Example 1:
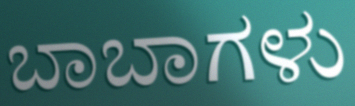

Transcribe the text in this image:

ಬಾಬಾಗಳು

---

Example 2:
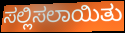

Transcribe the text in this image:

ಸಲ್ಲಿಸಲಾಯಿತು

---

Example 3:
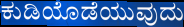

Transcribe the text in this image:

ಕುಡಿಯೊಡೆಯುವುದು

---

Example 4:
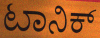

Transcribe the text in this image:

ಟಾನಿಕ್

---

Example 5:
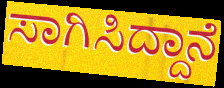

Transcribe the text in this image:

ಸಾಗಿಸಿದ್ದಾನೆ